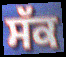
ਸੱਕ